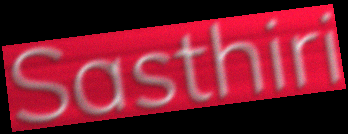
Sasthiri